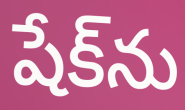
షేక్‌ను